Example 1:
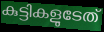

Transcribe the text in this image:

കുട്ടികളുടേത്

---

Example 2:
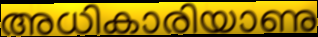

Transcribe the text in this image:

അധികാരിയാണു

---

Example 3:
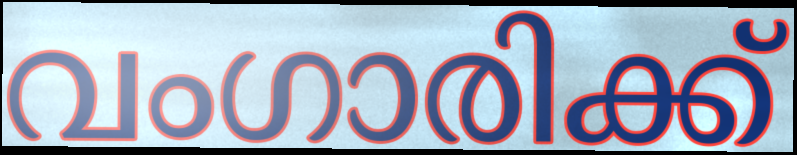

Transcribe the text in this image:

വംഗാരിക്ക്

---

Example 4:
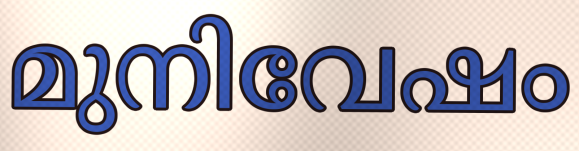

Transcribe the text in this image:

മുനിവേഷം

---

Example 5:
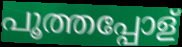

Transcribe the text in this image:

പൂത്തപ്പോള്